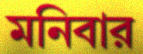
মনিবার